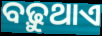
ବଢ଼ୁଥାଏ